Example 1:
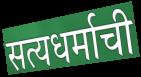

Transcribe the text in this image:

सत्यधर्माची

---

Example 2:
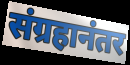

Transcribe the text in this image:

संग्रहानंतर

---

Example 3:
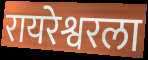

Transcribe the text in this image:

रायरेश्वरला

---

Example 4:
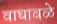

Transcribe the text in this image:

वाघावळे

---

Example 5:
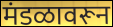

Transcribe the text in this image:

मंडळावरून